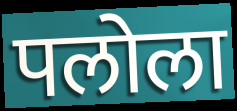
पलोला